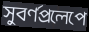
সুবর্ণপ্রলেপে